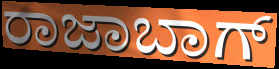
ರಾಜಾಬಾಗ್